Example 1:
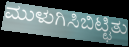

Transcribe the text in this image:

ಮುಳುಗಿಸಿಬಿಟ್ಟಿತು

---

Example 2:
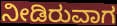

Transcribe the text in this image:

ನೀಡಿರುವಾಗ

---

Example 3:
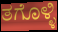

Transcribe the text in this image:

ತಗೊಳ್ಳಿ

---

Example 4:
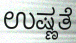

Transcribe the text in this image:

ಉಷ್ಣತೆ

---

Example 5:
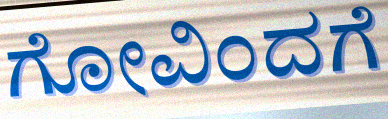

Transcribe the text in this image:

ಗೋವಿಂದಗೆ